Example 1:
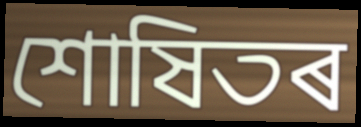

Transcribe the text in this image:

শোষিতৰ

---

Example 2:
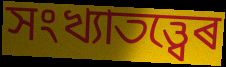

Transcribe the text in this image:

সংখ্যাতত্ত্বেৰ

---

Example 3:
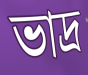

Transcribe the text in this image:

ভাদ্ৰ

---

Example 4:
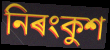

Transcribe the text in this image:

নিৰংকুশ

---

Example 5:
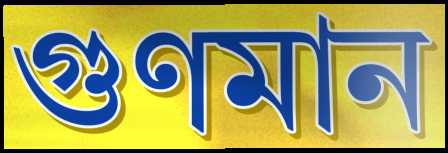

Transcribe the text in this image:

গুণমান